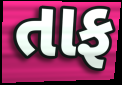
તાફ